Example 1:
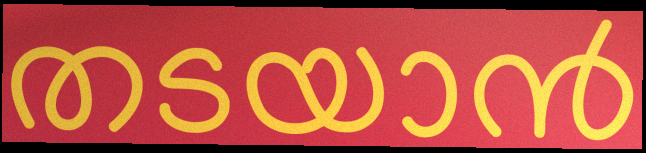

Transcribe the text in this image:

തടയാൻ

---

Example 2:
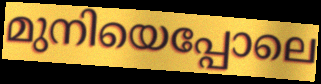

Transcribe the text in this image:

മുനിയെപ്പോലെ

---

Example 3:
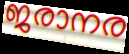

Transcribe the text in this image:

ജരാനര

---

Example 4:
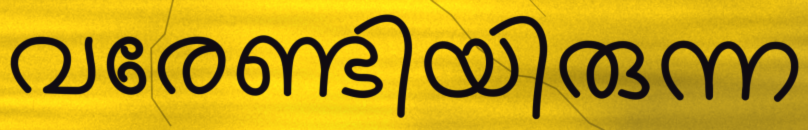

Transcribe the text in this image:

വരേണ്ടിയിരുന്ന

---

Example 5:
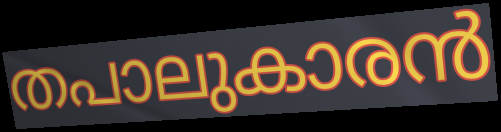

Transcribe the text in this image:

തപാലുകാരൻ